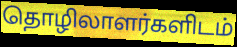
தொழிலாளர்களிடம்